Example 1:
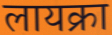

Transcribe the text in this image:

लायक्रा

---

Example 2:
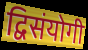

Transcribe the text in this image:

द्विसंयोगी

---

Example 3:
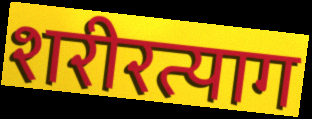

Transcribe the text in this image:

शरीरत्याग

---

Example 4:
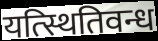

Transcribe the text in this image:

यत्स्थितिवन्ध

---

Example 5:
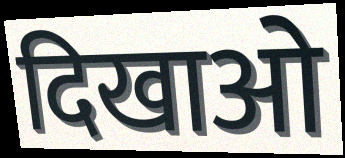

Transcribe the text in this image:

दिखाओ